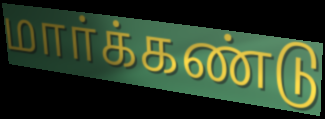
மார்க்கண்டு